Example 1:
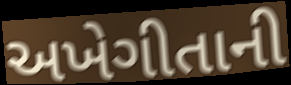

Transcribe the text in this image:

અખેગીતાની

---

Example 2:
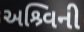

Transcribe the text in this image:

અશ્ર્વિની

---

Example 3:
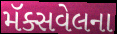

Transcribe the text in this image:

મૅક્સવેલના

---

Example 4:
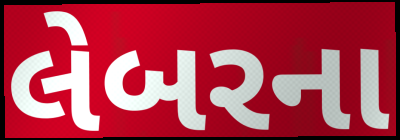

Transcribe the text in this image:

લેબરના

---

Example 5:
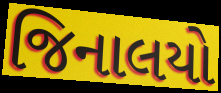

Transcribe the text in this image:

જિનાલયો